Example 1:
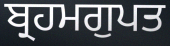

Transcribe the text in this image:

ਬ੍ਰਹਮਗੁਪਤ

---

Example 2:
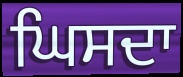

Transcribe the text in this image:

ਘਿਸਦਾ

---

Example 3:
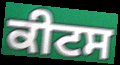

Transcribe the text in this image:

ਕੀਟਸ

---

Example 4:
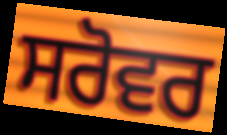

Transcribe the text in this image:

ਸਰੋਵਰ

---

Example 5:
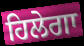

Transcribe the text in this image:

ਹਿਲੇਗਾ